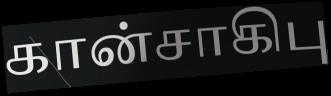
கான்சாகிபு